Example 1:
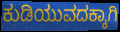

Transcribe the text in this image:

ಕುಡಿಯುವದಕ್ಕಾಗಿ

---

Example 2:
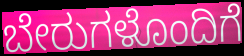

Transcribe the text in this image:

ಬೇರುಗಳೊಂದಿಗೆ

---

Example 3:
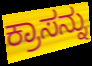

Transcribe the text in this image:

ಕ್ರಾಸನ್ನು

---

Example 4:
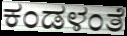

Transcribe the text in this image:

ಕಂಡಳಂತೆ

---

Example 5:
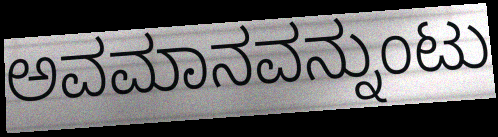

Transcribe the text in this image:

ಅವಮಾನವನ್ನುಂಟು